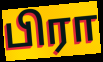
பிரா